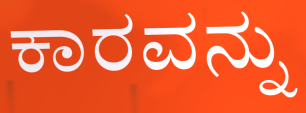
ಕಾರವನ್ನು